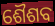
ଶୈଶବ